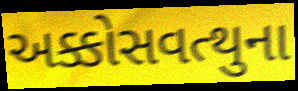
અક્કોસવત્થુના